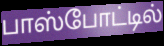
பாஸ்போட்டில்